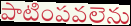
పాటింపవలెను